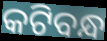
କଟିବନ୍ଧ